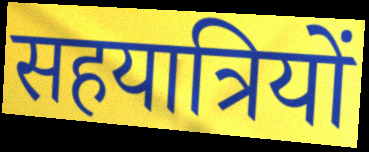
सहयात्रियों